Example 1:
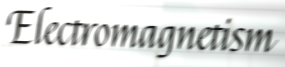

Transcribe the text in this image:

Electromagnetism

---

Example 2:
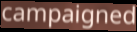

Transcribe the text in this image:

campaigned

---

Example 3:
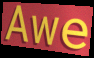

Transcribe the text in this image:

Awe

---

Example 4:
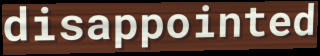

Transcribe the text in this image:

disappointed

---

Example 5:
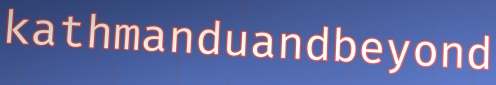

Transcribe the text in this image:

kathmanduandbeyond